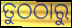
ତୁଠଠାରୁ